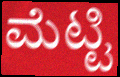
ಮೆಟ್ಟಿ